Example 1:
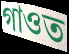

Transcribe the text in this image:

গাওত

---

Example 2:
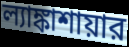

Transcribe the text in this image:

ল্যাঙ্কাশায়ার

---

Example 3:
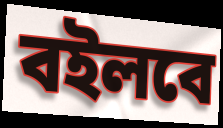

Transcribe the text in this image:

বইলবে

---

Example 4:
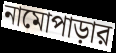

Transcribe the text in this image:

নামোপাড়ার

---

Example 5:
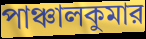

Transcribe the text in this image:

পাঞ্চালকুমার